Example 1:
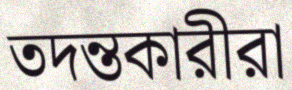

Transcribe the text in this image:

তদন্তকারীরা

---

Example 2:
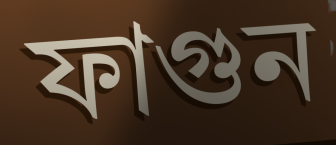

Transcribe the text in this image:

ফাগুন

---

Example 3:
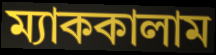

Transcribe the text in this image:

ম্যাককালাম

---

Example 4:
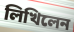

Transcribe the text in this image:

লিখিলেন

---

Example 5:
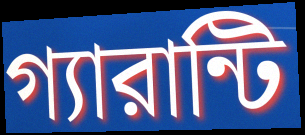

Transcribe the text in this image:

গ্যারান্টি